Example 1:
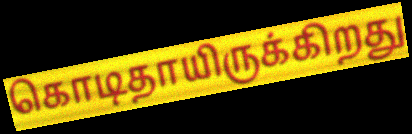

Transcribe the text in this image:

கொடிதாயிருக்கிறது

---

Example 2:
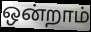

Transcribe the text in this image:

ஒன்றாம்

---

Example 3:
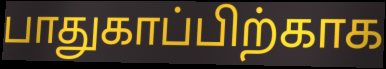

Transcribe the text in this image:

பாதுகாப்பிற்காக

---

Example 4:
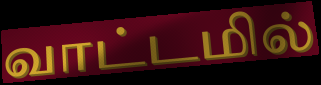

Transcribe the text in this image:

வாட்டமில்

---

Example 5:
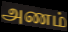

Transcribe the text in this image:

அணம்